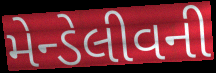
મેન્ડેલીવની